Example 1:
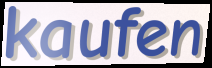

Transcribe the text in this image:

kaufen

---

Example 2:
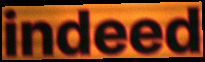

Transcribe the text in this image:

indeed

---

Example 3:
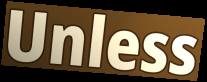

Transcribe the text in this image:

Unless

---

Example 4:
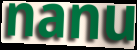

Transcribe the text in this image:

nanu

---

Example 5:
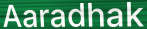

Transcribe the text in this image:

Aaradhak